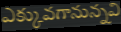
ఎక్కువగానున్నవి